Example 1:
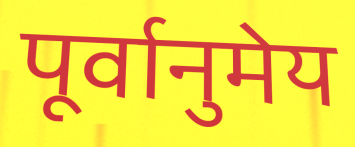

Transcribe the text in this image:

पूर्वानुमेय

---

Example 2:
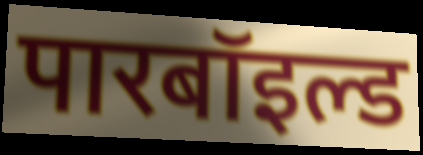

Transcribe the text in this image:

पारबॉइल्ड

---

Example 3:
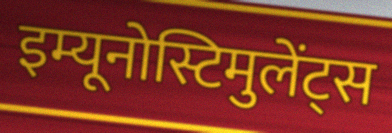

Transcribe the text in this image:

इम्यूनोस्टिमुलेंट्स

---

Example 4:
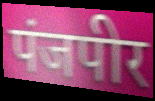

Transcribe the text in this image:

पंजपीर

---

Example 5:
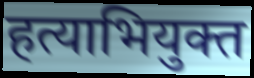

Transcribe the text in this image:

हत्याभियुक्त